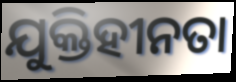
ଯୁକ୍ତିହୀନତା